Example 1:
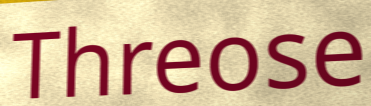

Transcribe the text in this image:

Threose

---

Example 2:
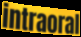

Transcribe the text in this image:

intraoral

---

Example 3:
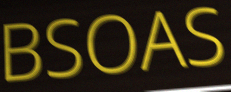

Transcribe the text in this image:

BSOAS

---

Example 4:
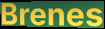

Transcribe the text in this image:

Brenes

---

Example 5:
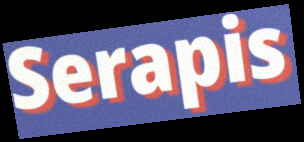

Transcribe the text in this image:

Serapis